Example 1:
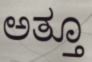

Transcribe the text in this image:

ಅತ್ತೂ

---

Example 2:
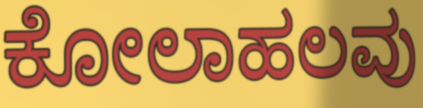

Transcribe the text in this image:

ಕೋಲಾಹಲವು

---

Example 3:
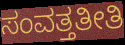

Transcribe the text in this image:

ಸಂವತ್ತತೀತಿ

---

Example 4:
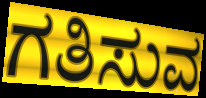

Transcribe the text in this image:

ಗತಿಸುವ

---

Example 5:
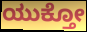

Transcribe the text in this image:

ಯುಕ್ತೋ